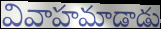
వివాహమాడాడు